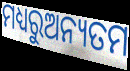
ମଧ୍ୟରୁଅନ୍ୟତମ